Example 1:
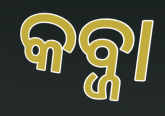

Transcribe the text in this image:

କବ୍ଜା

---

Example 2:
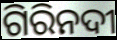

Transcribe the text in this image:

ଗିରିନଦୀ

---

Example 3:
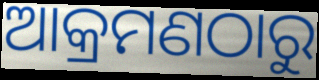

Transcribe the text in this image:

ଆକ୍ରମଣଠାରୁ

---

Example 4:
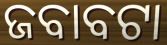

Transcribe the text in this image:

ଜବାବଟା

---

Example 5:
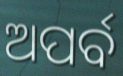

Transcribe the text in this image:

ଅପର୍ବ